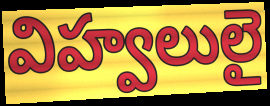
విహ్వలులై